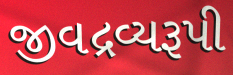
જીવદ્રવ્યરૂપી